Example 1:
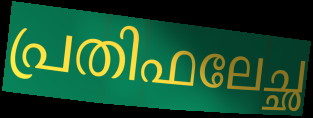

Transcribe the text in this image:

പ്രതിഫലേച്ഛ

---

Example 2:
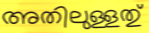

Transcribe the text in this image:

അതിലുള്ളതു്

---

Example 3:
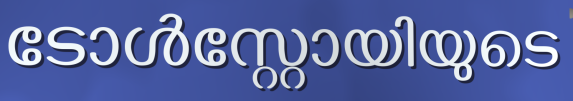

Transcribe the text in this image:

ടോൾസ്റ്റോയിയുടെ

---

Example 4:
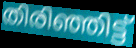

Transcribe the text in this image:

തിരിഞ്ഞിട്ട്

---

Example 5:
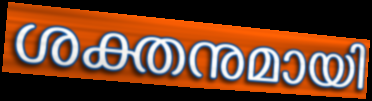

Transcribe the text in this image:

ശക്തനുമായി